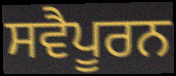
ਸਵੈਪੂਰਨ